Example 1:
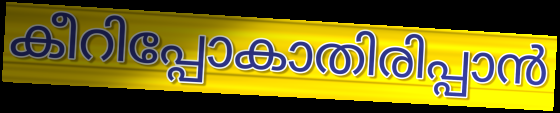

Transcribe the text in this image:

കീറിപ്പോകാതിരിപ്പാൻ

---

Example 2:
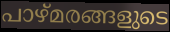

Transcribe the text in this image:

പാഴ്മരങ്ങളുടെ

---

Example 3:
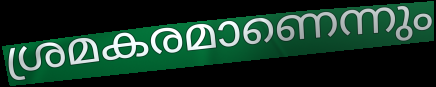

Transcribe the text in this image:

ശ്രമകരമാണെന്നും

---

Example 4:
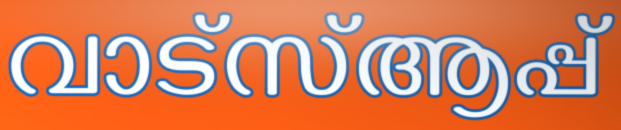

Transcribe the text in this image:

വാട്സ്ആപ്പ്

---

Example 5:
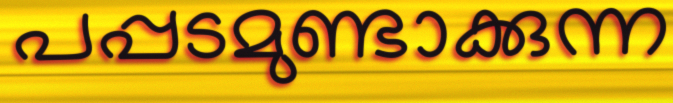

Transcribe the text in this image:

പപ്പടമുണ്ടാക്കുന്ന